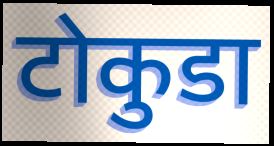
टोकुडा